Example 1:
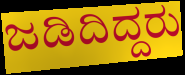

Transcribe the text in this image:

ಜಡಿದಿದ್ದರು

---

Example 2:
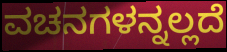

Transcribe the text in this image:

ವಚನಗಳನ್ನಲ್ಲದೆ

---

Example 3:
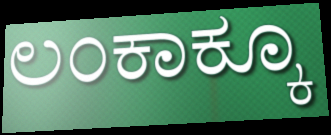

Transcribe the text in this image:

ಲಂಕಾಕ್ಕೂ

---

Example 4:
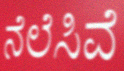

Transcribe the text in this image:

ನೆಲೆಸಿವೆ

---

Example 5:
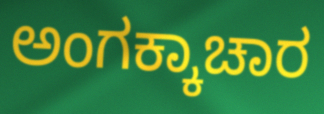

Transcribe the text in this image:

ಅಂಗಕ್ಕಾಚಾರ